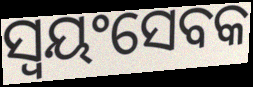
ସ୍ୱୟଂସେବକ